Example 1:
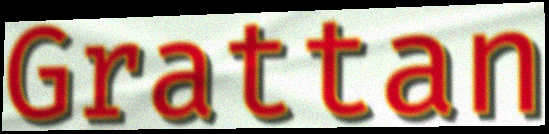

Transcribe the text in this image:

Grattan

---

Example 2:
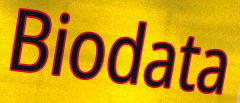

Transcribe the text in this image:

Biodata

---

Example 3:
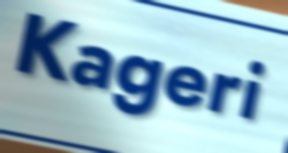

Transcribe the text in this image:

Kageri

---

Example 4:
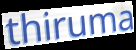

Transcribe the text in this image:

thiruma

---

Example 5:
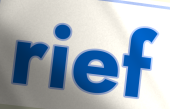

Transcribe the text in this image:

rief